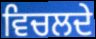
ਵਿਚਲਦੇ